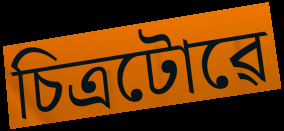
চিত্ৰটোৱে